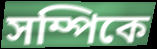
সম্পিকে